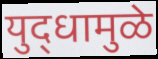
युद्धामुळे